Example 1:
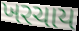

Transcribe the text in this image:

ખરચાય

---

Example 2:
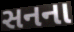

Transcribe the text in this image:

સનના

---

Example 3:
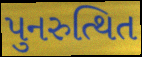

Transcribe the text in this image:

પુનરુત્થિત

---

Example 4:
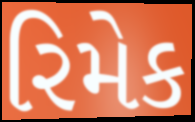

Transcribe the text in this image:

રિમેક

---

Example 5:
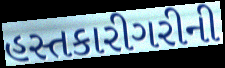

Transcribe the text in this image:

હસ્તકારીગરીની